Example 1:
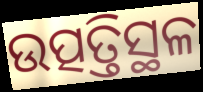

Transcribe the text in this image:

ଉତ୍ପତ୍ତିସ୍ଥଳ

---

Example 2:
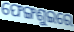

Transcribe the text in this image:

ଫେଙ୍ଗଶୁଇରେ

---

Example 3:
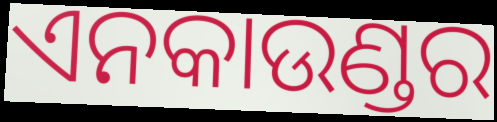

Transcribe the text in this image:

ଏନକାଉଣ୍ଡର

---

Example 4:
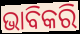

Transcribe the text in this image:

ଭାବିକରି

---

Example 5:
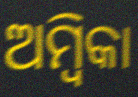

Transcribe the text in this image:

ଅମ୍ବିକା